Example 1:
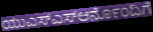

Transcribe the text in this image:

ಯುಎಸ್ಎಸ್ಆರ್ನೊಂದಿಗೆ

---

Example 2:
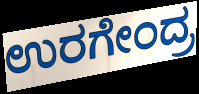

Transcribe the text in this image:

ಉರಗೇಂದ್ರ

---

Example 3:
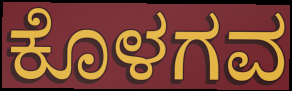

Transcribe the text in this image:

ಕೊಳಗವ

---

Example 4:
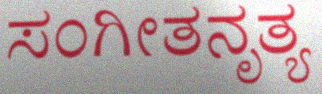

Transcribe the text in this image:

ಸಂಗೀತನೃತ್ಯ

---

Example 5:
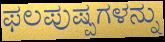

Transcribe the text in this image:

ಫಲಪುಷ್ಪಗಳನ್ನು